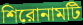
শিরোনামটি